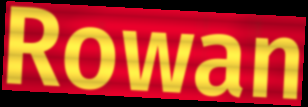
Rowan